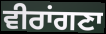
ਵੀਰਾਂਗਣਾ